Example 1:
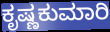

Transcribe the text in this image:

ಕೃಷ್ಣಕುಮಾರಿ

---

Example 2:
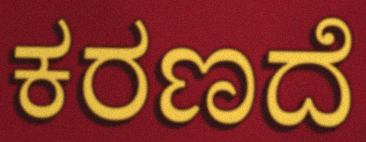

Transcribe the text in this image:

ಕರಣದೆ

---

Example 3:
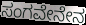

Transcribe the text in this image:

ಸಂಗವೇನೇನ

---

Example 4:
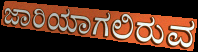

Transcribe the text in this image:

ಜಾರಿಯಾಗಲಿರುವ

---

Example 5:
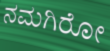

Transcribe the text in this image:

ನಮಗಿರೋ